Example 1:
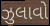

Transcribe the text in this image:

ઝુલાવો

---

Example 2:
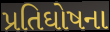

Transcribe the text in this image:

પ્રતિઘોષના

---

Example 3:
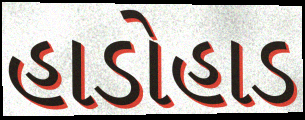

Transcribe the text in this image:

હાડોહાડ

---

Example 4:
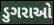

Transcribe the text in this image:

ડુગરાઓ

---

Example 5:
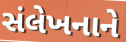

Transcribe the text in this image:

સંલેખનાને